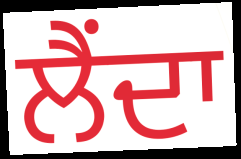
ਲੈਂਦਾ